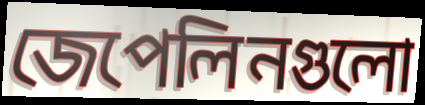
জেপেলিনগুলো